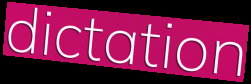
dictation